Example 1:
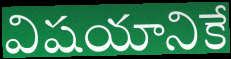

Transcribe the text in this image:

విషయానికే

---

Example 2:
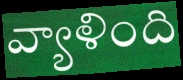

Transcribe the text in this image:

వ్యాళింది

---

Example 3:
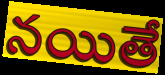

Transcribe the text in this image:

నయితే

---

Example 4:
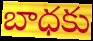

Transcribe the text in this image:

బాధకు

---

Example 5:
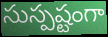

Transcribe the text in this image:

సుస్పష్టంగా